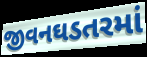
જીવનઘડતરમાં